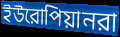
ইউরোপিয়ানরা